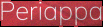
Periappa